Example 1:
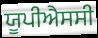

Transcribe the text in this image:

ਯੂਪੀਐਸਸੀ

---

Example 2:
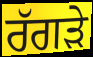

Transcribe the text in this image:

ਰੱਗੜੇ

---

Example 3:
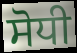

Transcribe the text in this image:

ਸੋਧੀ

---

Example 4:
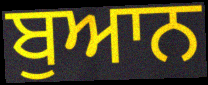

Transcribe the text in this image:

ਬੁਆਨ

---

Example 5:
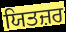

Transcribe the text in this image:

ਯਿਤਜ਼ਰ